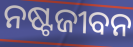
ନଷ୍ଟଜୀବନ